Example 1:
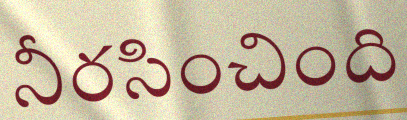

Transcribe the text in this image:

నీరసించింది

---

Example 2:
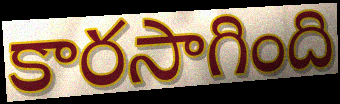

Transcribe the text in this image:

కారసాగింది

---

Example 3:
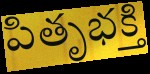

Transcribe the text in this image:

పితృభక్తి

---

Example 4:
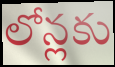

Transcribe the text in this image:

లోన్లకు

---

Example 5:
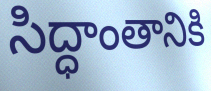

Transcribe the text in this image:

సిద్ధాంతానికి